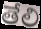
తేలి